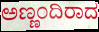
ಅಣ್ಣಂದಿರಾದ